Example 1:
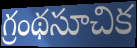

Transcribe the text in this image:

గ్రంథసూచిక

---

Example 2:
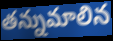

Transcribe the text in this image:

తన్నుమాలిన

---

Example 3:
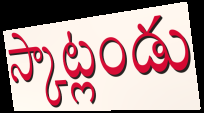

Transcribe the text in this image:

స్కాట్లండు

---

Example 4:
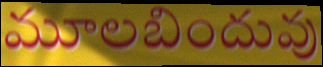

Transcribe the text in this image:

మూలబిందువు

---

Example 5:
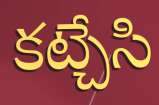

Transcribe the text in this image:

కట్చేసి